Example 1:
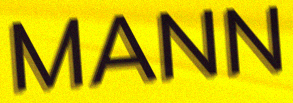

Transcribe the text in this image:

MANN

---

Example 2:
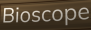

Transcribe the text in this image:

Bioscope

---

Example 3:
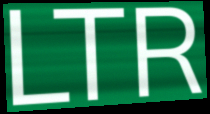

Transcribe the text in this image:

LTR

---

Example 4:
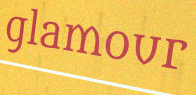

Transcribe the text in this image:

glamour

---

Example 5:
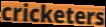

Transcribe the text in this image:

cricketers